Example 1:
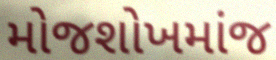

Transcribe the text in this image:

મોજશોખમાંજ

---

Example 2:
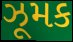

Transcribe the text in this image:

ઝૂમક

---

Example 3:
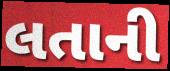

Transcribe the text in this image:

લતાની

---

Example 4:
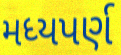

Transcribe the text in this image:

મધ્યપર્ણ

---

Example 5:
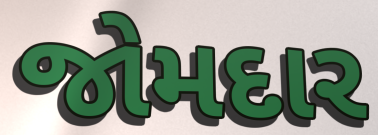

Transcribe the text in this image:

જોમદાર